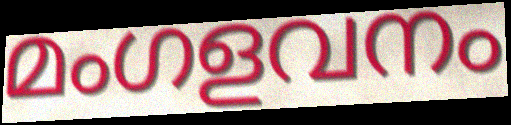
മംഗളവനം